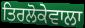
ਤਿਰਲੋਕੇਵਾਲਾ